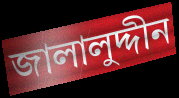
জালালুদ্দীন